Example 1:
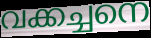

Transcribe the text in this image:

വക്കച്ചനെ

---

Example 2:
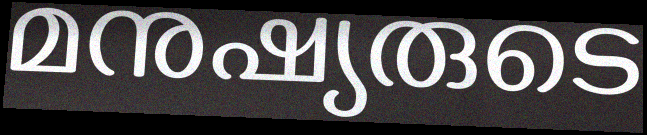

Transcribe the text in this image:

മനുഷ്യരുടെ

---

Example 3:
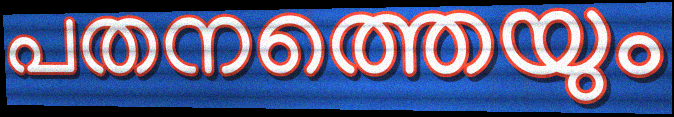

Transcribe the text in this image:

പതനത്തെയും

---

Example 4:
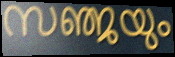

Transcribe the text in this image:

സഞ്ജയും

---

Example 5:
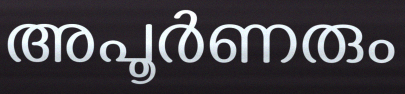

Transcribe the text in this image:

അപൂർണരും